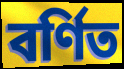
বর্ণিত